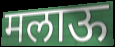
मलाऊ